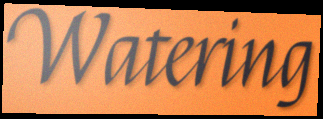
Watering